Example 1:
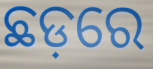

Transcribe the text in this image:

ଛଡ଼ରେ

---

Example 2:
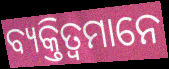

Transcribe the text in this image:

ବ୍ୟକ୍ତିତ୍ୱମାନେ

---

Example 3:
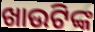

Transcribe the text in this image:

ଖାଉଟିଙ୍କ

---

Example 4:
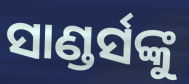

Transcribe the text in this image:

ସାଣ୍ଡର୍ସଙ୍କୁ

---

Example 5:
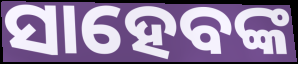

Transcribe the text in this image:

ସାହେବଙ୍କ